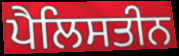
ਪੈਲਿਸਤੀਨ